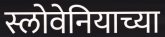
स्लोवेनियाच्या